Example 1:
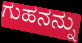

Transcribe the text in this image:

ಗುಹನನ್ನು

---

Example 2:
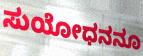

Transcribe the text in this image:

ಸುಯೋಧನನೂ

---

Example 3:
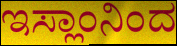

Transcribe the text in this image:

ಇಸ್ಲಾಂನಿಂದ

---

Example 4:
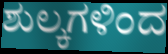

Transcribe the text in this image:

ಶುಲ್ಕಗಳಿಂದ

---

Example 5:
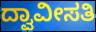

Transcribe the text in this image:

ದ್ವಾವೀಸತಿ